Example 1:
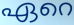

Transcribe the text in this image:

ഏറെ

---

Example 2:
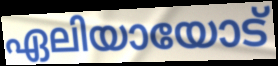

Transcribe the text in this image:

ഏലിയായോട്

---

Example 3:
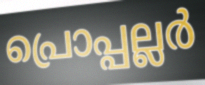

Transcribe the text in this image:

പ്രൊപ്പല്ലർ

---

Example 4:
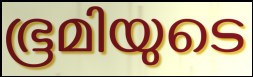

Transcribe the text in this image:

ഭൂമിയുടെ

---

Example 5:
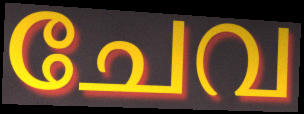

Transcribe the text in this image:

ചേവ